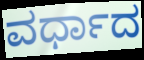
ವರ್ಧಾದ